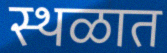
स्थळात